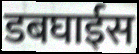
डबघाईस